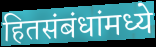
हितसंबंधांमध्ये